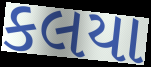
કલયા